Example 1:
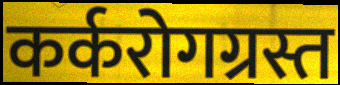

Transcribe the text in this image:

कर्करोगग्रस्त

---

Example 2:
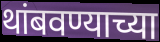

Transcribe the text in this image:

थांबवण्याच्या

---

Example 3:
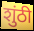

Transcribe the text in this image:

शुंठी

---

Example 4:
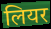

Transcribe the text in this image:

लियर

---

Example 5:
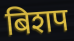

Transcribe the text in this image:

बिशप